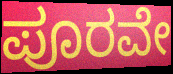
ಪೂರವೇ